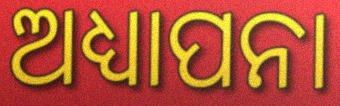
ଅଧ୍ୟାପନା